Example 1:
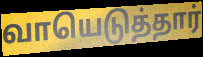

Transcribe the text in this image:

வாயெடுத்தார்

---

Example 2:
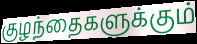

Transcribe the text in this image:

குழந்தைகளுக்கும்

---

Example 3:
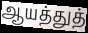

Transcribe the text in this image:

ஆயத்துத்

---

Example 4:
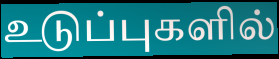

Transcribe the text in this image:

உடுப்புகளில்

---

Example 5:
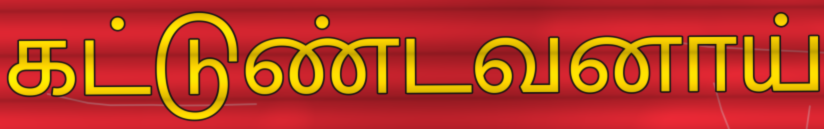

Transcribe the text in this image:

கட்டுண்டவனாய்